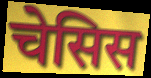
चेसिस